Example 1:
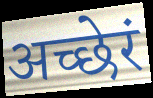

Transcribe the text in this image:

अच्छेरं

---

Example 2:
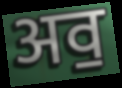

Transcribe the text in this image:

अव॒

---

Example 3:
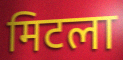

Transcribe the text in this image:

मिटला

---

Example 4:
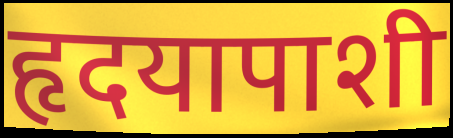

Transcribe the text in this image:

हृदयापाशी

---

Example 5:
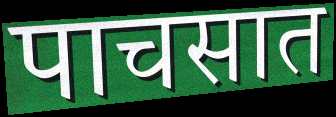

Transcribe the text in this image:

पाचसात